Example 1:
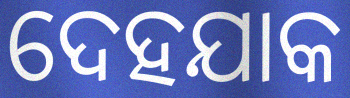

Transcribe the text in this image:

ଦେହଯାକ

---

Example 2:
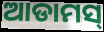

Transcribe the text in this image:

ଆଡାମସ୍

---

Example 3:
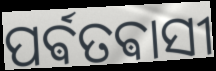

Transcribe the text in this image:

ପର୍ଵତଵାସୀ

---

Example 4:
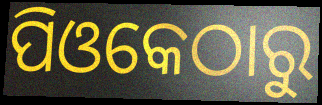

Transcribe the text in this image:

ପିଓକେଠାରୁ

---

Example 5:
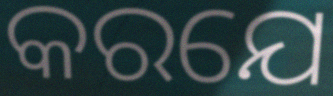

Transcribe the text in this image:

କରଯେ